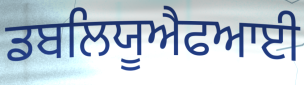
ਡਬਲਿਯੂਐਫਆਈ